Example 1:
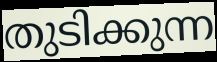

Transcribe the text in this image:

തുടിക്കുന്ന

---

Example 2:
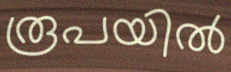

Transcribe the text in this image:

രൂപയിൽ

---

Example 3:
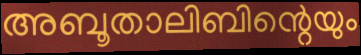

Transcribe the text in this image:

അബൂതാലിബിന്റെയും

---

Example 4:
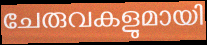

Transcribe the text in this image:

ചേരുവകളുമായി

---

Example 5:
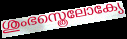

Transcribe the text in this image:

ശുംഭസ്ത്രെലോക്യേ